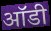
ऑडी